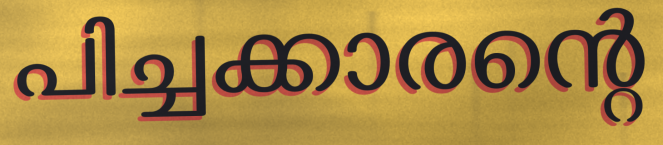
പിച്ചക്കാരന്റെ